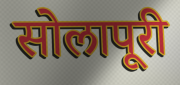
सोलापूरी